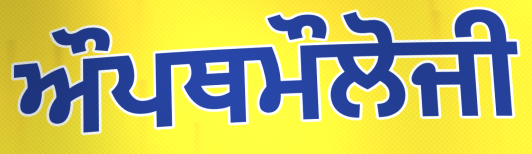
ਔਪਥਮੌਲੋਜੀ